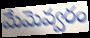
మేమెవ్వరం